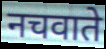
नचवाते